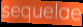
sequelae